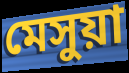
মেসুয়া